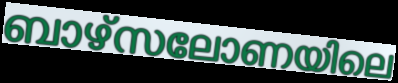
ബാഴ്സലോണയിലെ